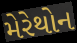
મેરેથોન